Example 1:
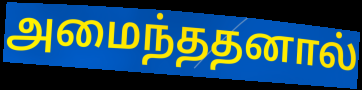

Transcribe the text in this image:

அமைந்ததனால்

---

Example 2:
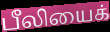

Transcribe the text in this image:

பீலியைக்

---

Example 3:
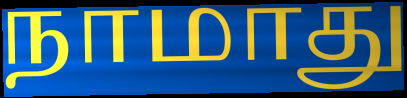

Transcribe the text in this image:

நாமாது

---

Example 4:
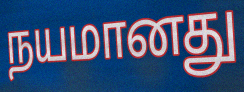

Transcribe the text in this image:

நயமானது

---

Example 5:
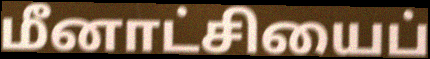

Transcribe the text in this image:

மீனாட்சியைப்